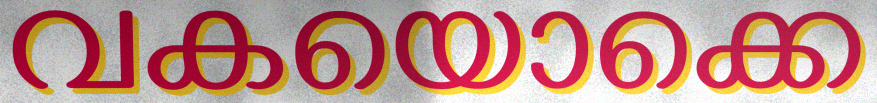
വകയൊക്കെ